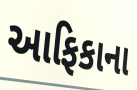
આફિકાના